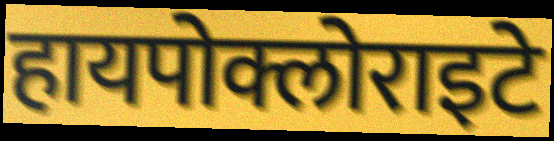
हायपोक्लोराइटे